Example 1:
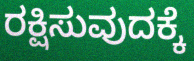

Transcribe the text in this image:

ರಕ್ಷಿಸುವುದಕ್ಕೆ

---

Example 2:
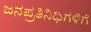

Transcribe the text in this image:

ಜನಪ್ರತಿನಿಧಿಗಳಿಗೆ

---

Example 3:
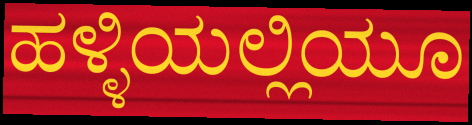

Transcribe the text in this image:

ಹಳ್ಳಿಯಲ್ಲಿಯೂ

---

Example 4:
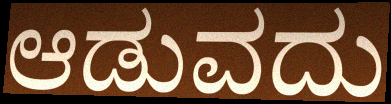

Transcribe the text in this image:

ಆಡುವದು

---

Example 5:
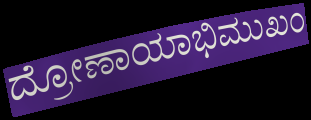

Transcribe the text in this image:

ದ್ರೋಣಾಯಾಭಿಮುಖಂ